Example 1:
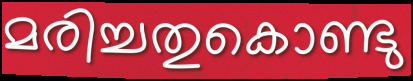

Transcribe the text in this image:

മരിച്ചതുകൊണ്ടു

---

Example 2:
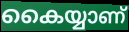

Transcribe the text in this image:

കൈയ്യാണ്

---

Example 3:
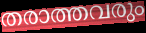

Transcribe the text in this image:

തരാത്തവരും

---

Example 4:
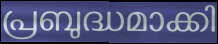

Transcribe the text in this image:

പ്രബുദ്ധമാക്കി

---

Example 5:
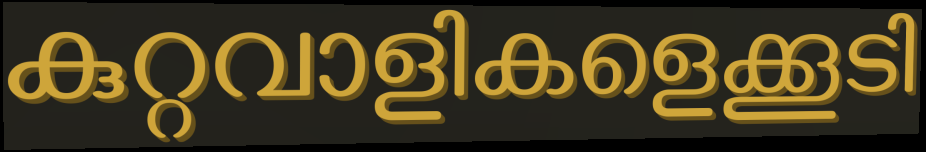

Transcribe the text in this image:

കുറ്റവാളികളെക്കൂടി